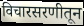
विचारसरणीतून